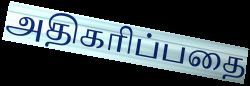
அதிகரிப்பதை